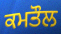
ਕਮਤੌਲ